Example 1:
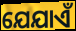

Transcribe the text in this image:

ଯେଯାଏଁ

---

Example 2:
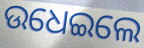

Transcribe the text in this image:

ଉଧେଇଲେ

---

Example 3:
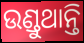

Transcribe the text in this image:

ଉଣ୍ଡୁଥାନ୍ତି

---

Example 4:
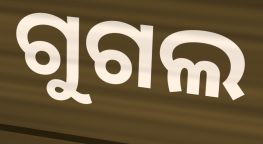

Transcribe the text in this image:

ଗୁଗଲ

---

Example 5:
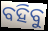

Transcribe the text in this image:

ବହିବୁ